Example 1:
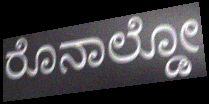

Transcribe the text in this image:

ರೊನಾಲ್ಡೋ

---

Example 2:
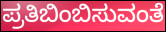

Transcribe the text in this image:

ಪ್ರತಿಬಿಂಬಿಸುವಂತೆ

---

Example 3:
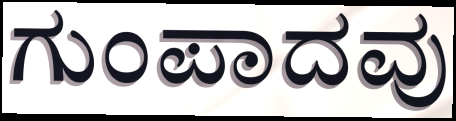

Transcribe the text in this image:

ಗುಂಪಾದವು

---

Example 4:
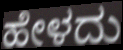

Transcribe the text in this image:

ಹೇಳದು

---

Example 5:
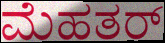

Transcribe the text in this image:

ಮೆಹತರ್